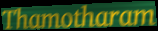
Thamotharam